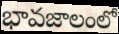
భావజాలంలో